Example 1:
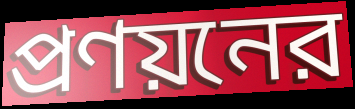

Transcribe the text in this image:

প্রণয়নের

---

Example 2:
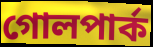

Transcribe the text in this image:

গোলপার্ক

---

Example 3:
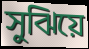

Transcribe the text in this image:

সুঝিয়ে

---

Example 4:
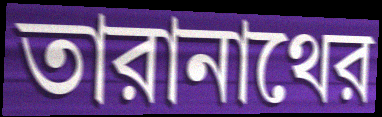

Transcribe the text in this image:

তারানাথের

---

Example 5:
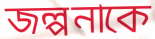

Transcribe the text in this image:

জল্পনাকে